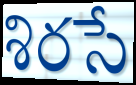
శిరసే